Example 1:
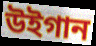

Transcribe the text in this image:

উইগান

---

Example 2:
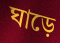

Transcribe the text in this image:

ঘাড়ে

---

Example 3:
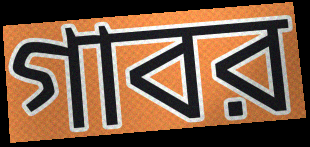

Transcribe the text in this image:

গাবর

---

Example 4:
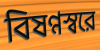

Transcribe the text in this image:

বিষণ্ণস্বরে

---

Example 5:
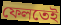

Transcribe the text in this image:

ফেলতেই